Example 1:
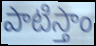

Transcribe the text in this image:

పాటిస్తాం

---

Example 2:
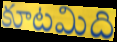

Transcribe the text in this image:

కూటమిది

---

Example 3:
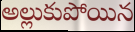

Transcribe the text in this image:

అల్లుకుపోయిన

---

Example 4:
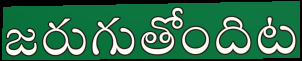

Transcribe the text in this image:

జరుగుతోందిట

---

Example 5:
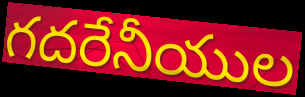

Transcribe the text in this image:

గదరేనీయుల